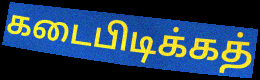
கடைபிடிக்கத்